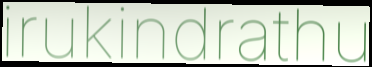
irukindrathu